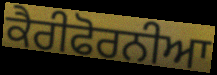
ਕੈਰੀਫੋਰਨੀਆ